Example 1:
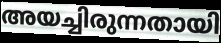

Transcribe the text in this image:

അയച്ചിരുന്നതായി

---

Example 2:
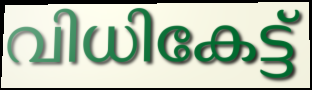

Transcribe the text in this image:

വിധികേട്ട്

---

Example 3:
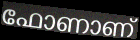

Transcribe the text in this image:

ഫോണാണ്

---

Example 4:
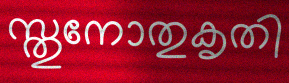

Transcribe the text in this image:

സ്തുനോതുകൃതി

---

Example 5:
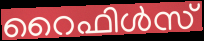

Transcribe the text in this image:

റൈഫിൾസ്